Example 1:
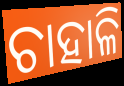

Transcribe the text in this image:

ଚାହାଳି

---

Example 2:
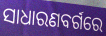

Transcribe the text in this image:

ସାଧାରଣବର୍ଗରେ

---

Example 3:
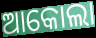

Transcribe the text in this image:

ଆକୋଲା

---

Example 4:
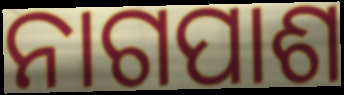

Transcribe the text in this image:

ନାଗପାଶ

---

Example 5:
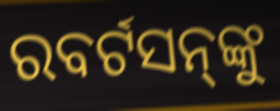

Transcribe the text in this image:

ରବର୍ଟସନ୍‌ଙ୍କୁ